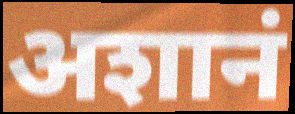
अशानं